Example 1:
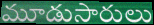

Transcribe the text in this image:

మూడుసారులు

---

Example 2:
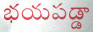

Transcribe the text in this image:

భయపడ్డా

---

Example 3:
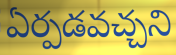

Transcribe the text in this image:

ఏర్పడవచ్చని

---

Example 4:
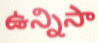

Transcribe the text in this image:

ఉన్నిసా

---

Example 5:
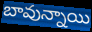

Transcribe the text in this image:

బావున్నాయి